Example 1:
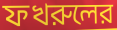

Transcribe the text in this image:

ফখরুলের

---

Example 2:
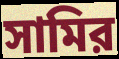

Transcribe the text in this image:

সামির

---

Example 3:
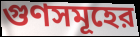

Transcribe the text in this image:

গুণসমূহের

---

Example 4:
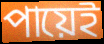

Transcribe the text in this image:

পায়েই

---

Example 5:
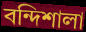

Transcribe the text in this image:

বন্দিশালা